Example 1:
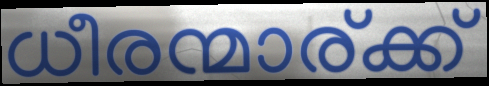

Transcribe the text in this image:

ധീരന്മാര്ക്ക്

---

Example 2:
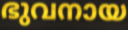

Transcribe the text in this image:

ഭുവനായ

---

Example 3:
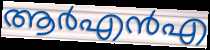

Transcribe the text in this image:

ആർഎൻഎ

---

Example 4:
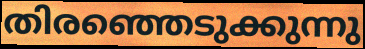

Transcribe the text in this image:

തിരഞ്ഞെടുക്കുന്നു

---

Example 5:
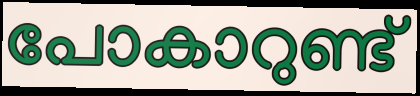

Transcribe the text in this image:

പോകാറുണ്ട്